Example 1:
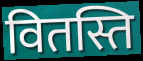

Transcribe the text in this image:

वितस्ति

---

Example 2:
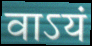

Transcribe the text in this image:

वाऽयं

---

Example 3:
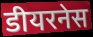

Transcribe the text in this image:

डीयरनेस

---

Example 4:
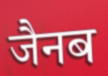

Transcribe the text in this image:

जैनब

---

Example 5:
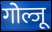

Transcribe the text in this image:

गोल्जू